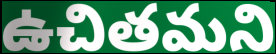
ఉచితమని